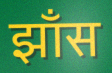
झाँस